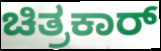
ಚಿತ್ರಕಾರ್